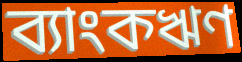
ব্যাংকঋণ